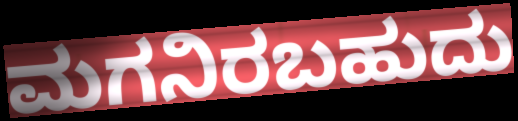
ಮಗನಿರಬಹುದು